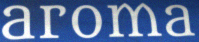
aroma